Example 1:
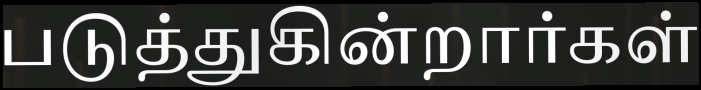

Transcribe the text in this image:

படுத்துகின்றார்கள்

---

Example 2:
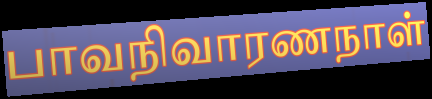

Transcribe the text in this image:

பாவநிவாரணநாள்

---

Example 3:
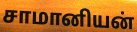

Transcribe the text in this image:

சாமானியன்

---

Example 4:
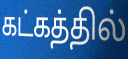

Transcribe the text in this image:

கட்கத்தில்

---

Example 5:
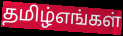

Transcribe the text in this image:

தமிழ்எங்கள்